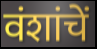
वंशांचें